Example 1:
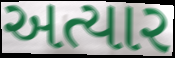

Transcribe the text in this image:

અત્યાર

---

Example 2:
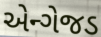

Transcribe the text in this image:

એન્ગેજડ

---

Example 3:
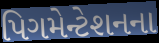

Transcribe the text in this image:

પિગમેન્ટેશનના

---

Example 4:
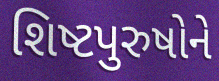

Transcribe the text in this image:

શિષ્ટપુરુષોને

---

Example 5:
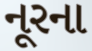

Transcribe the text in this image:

નૂરના